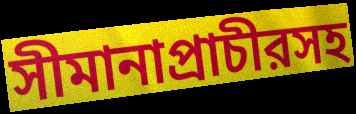
সীমানাপ্রাচীরসহ